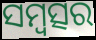
ସମ୍ବତ୍ସର